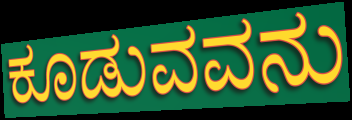
ಕೂಡುವವನು